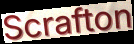
Scrafton